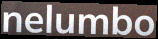
nelumbo